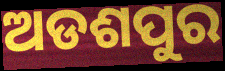
ଅଡଶପୁର